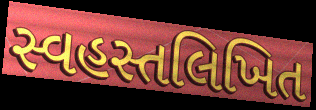
સ્વહસ્તલિખિત